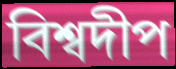
বিশ্বদীপ